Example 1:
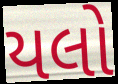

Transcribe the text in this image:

યલો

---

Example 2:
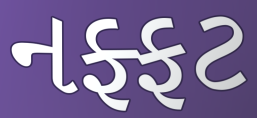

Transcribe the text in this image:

નફ્ફટ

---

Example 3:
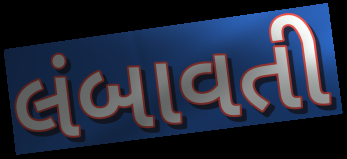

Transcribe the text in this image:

લંબાવતી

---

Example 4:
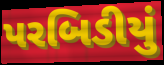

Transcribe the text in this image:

પરબિડીયું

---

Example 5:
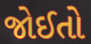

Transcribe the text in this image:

જોઈતો